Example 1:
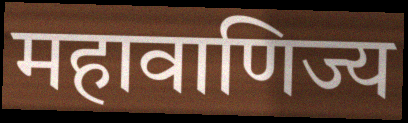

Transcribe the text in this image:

महावाणिज्य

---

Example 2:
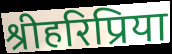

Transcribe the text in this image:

श्रीहरिप्रिया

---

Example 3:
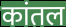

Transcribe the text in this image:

कांतल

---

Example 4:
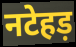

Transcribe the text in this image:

नटेहड़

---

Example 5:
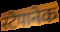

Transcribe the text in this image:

स्टेपानेक